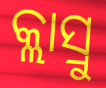
କ୍ଲାସ୍ରୁ